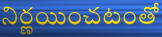
నిర్ణయించటంతో